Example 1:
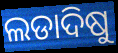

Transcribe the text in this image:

ଲଡାଦିଷୁ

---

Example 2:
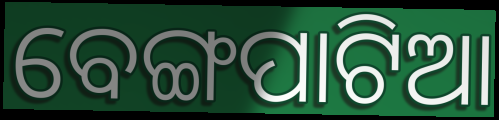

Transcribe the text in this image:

ବେଙ୍ଗପାଟିଆ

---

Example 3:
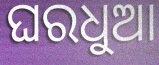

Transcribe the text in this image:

ଘରଧୁଆ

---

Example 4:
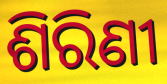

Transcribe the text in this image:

ଶିରିଣୀ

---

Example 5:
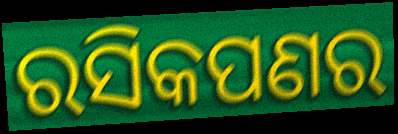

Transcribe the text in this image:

ରସିକପଣର